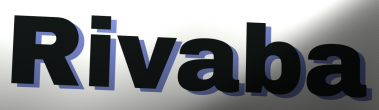
Rivaba